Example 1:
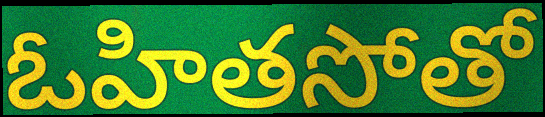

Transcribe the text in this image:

ఓహితసోతో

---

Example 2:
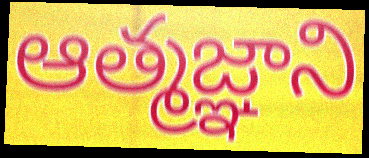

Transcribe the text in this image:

ఆత్మజ్ఞాని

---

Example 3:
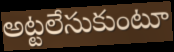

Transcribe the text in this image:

అట్టలేసుకుంటూ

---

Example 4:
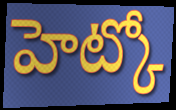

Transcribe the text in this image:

హెట్కో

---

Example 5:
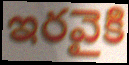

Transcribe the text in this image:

ఇరవైకి